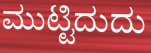
ಮುಟ್ಟಿದುದು